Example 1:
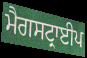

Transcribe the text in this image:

ਮੈਗਸਟ੍ਰਾਈਪ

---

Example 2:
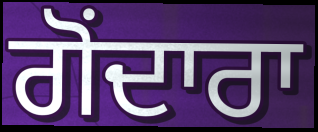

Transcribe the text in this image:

ਗੋਂਦਾਰਾ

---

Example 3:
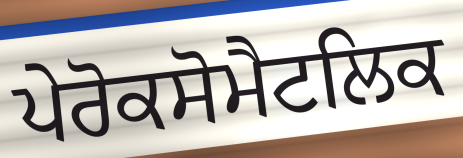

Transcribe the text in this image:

ਪੇਰੋਕਸੋਮੈਟਲਿਕ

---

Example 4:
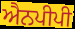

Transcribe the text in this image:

ਐਨਪੀਪੀ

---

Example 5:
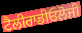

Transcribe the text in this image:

ਟੈਲੀਰਾਡੀਓਲੋਜੀ